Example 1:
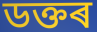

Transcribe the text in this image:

ডক্তৰ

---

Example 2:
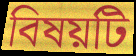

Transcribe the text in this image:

বিষয়টি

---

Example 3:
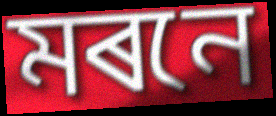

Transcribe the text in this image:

মৰনে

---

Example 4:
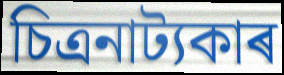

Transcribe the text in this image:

চিত্ৰনাট্যকাৰ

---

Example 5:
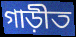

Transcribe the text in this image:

গাড়ীত